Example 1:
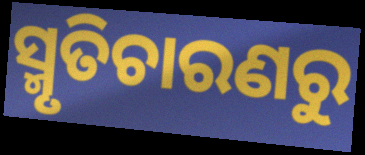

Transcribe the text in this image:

ସ୍ମୃତିଚାରଣରୁ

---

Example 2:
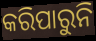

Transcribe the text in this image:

କରିପାରୁନି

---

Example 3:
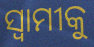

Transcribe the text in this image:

ସ୍ବାମୀକୁ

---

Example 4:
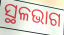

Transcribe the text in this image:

ସ୍ଥଳଭାଗ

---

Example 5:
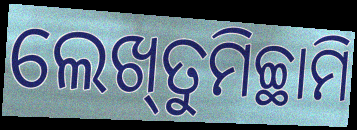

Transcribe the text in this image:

ଲେଖ୍‌ତୁମିଚ୍ଛାମି